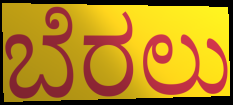
ಬೆರಲು